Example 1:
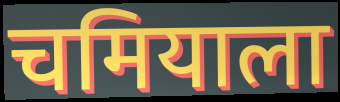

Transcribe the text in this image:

चमियाला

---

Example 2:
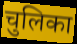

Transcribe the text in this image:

चुलिका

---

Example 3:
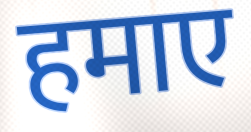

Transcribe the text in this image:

हमाए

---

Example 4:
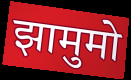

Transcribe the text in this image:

झामुमो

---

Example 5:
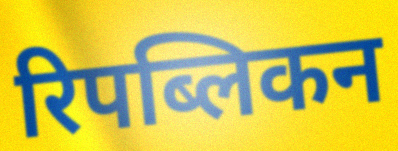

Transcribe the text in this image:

रिपब्लिकन